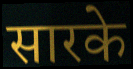
सारके